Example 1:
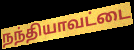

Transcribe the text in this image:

நந்தியாவட்டை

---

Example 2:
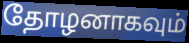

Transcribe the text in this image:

தோழனாகவும்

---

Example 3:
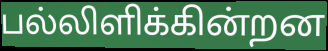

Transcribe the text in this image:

பல்லிளிக்கின்றன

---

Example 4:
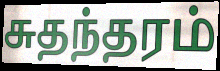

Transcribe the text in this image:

சுதந்தரம்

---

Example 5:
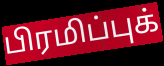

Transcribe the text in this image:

பிரமிப்புக்